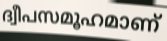
ദ്വീപസമൂഹമാണ്